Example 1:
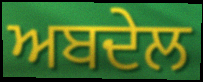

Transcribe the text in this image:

ਅਬਦੇਲ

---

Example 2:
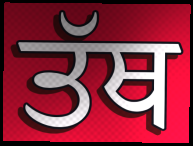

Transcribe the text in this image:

ਤੱਥ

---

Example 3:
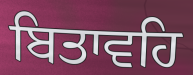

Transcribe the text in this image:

ਬਿਤਾਵਹਿ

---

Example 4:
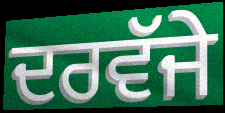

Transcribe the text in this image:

ਦਰਵੱਜੇ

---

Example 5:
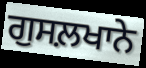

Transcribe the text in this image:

ਗੁਸਲ਼ਖਾਨੇ